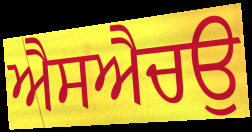
ਐਸਐਚਉ